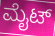
ಮೈಟ್